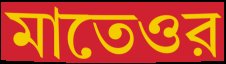
মাতেওর